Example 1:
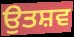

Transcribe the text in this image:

ਉਤਸ਼ਵ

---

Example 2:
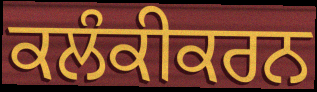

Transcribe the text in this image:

ਕਲੰਕੀਕਰਨ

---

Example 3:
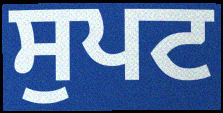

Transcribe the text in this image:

ਸੁਪਟ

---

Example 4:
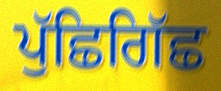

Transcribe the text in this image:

ਪੁੱਛਿਗਿੱਛ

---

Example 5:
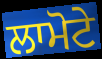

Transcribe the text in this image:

ਲਾਮੋਟੇ